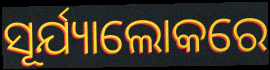
ସୂର୍ଯ୍ୟାଲୋକରେ